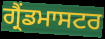
ਗ੍ਰੈਂਡਮਾਸਟਰ